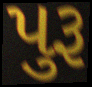
પુરૂ